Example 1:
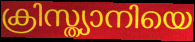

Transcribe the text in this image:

ക്രിസ്ത്യാനിയെ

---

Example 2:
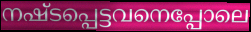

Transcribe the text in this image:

നഷ്ടപ്പെട്ടവനെപ്പോലെ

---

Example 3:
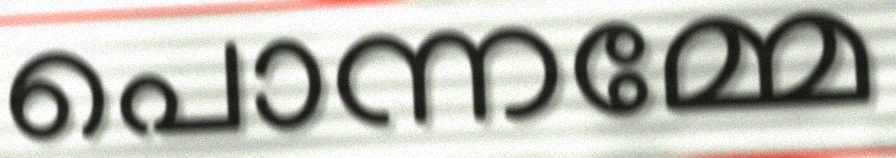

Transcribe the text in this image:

പൊന്നമ്മേ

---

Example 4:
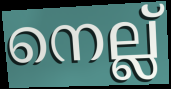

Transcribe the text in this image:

നെല്ല്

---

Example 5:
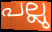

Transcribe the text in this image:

പല്ലു